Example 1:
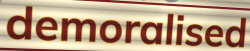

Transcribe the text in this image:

demoralised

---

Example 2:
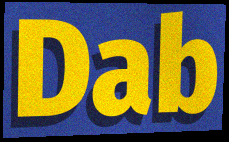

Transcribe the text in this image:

Dab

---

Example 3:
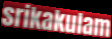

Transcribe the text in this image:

srikakulam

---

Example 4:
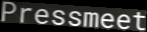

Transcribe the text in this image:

Pressmeet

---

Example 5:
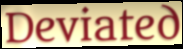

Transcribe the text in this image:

Deviated